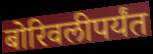
बोरिवलीपर्यंत